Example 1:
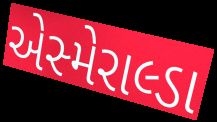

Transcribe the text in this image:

એસ્મેરાલ્ડા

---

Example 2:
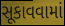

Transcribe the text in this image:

સૂકાવવામાં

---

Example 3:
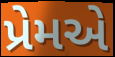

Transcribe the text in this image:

પ્રેમએ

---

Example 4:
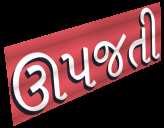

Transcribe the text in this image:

ઊપજતી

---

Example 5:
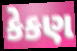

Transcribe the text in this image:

કેકણ